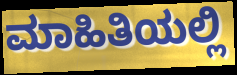
ಮಾಹಿತಿಯಲ್ಲಿ